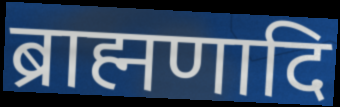
ब्राह्मणादि